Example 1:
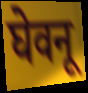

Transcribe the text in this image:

घेवनू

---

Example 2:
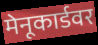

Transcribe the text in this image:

मेनूकार्डवर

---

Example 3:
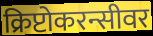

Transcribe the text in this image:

क्रिप्टोकरन्सीवर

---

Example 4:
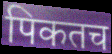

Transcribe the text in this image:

पिकतच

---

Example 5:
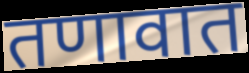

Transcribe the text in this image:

तणावात